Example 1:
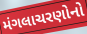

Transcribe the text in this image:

મંગલાચરણોનો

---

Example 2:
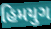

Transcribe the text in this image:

હિમયુગ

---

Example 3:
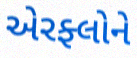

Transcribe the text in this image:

એરફ્લોને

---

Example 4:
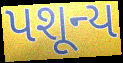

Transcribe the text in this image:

પશૂન્ય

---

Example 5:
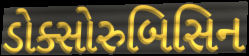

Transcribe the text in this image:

ડોક્સોરુબિસિન